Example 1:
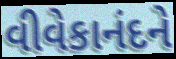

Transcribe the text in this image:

વીવેકાનંદને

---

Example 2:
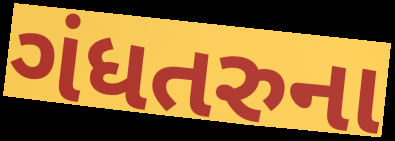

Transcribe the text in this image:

ગંધતરુના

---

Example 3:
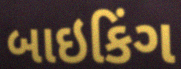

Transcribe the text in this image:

બાઇકિંગ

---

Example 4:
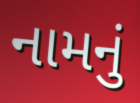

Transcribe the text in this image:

નામનું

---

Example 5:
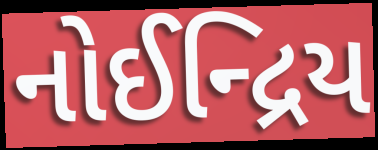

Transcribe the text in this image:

નોઈન્દ્રિય